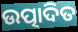
ଉତ୍ପାଦିତ